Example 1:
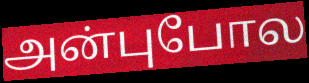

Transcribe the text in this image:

அன்புபோல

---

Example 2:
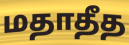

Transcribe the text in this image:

மதாதீத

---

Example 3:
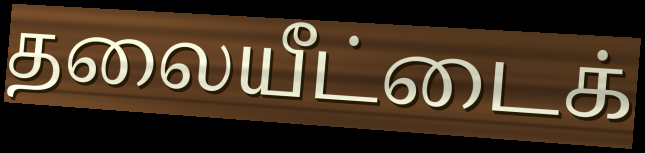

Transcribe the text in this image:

தலையீட்டைக்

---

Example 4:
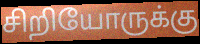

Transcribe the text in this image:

சிறியோருக்கு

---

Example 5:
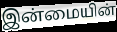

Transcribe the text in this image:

இன்மையின்